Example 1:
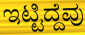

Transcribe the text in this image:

ಇಟ್ಟಿದ್ದೆವು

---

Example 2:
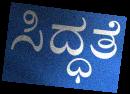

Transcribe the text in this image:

ಸಿದ್ಧತೆ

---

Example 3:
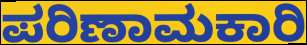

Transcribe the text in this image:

ಪರಿಣಾಮಕಾರಿ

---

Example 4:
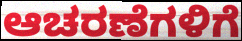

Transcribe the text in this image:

ಆಚರಣೆಗಳಿಗೆ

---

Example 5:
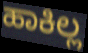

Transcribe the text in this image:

ಹಾಕಿಲ್ಲ